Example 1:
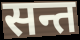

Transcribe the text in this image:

सन्त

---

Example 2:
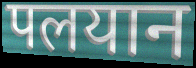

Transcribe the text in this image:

पलयान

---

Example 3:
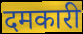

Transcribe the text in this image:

दमकारी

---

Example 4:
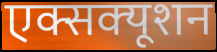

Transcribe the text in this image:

एक्सक्यूशन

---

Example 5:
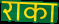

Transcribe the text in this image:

राका